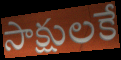
సాక్షులకే